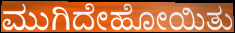
ಮುಗಿದೇಹೋಯಿತು